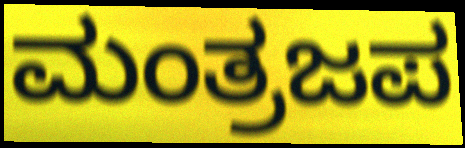
ಮಂತ್ರಜಪ